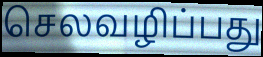
செலவழிப்பது